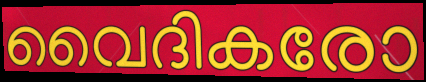
വൈദികരോ